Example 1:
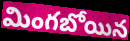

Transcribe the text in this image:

మింగబోయిన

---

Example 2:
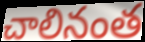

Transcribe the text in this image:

చాలినంత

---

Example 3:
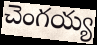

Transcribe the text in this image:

చెంగయ్య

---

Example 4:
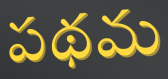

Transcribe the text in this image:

పథమ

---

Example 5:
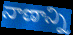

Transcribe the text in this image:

నాణాన్ని